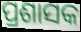
ପ୍ରଶାସକ